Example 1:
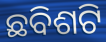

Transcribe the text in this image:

ଛବିଶଟି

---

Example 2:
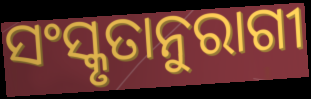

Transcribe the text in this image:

ସଂସ୍କୃତାନୁରାଗୀ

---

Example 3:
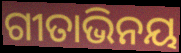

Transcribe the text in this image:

ଗୀତାଭିନୟ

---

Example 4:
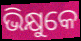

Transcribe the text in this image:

ଭିକ୍ଷୁକେ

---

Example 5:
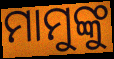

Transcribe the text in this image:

ମାମୁଙ୍କୁ